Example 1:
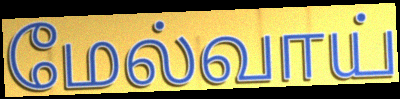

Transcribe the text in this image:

மேல்வாய்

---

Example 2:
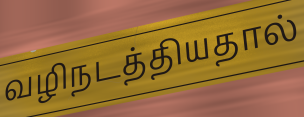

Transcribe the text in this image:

வழிநடத்தியதால்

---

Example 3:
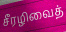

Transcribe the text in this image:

சீரழிவைத்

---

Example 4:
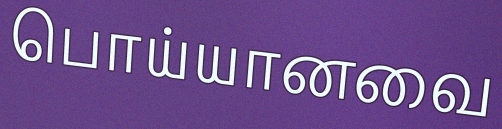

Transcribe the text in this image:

பொய்யானவை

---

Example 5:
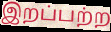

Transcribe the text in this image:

இறப்பற்ற